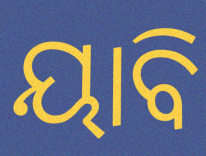
ୟାବି